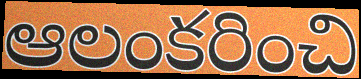
ఆలంకరించి